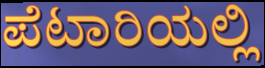
ಪೆಟಾರಿಯಲ್ಲಿ